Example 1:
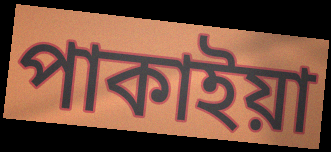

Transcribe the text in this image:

পাকাইয়া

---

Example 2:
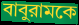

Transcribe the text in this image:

বাবুরামকে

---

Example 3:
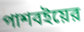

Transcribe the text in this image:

পাশবইয়ের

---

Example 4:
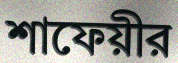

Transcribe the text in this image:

শাফেয়ীর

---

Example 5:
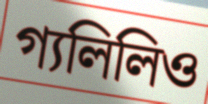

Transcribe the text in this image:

গ্যলিলিও